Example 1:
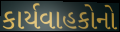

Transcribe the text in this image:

કાર્યવાહકોનો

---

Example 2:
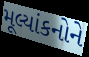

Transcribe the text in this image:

મૂલ્યાંકનોને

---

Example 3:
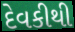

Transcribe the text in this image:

દેવકીથી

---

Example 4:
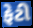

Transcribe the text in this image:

ફેટી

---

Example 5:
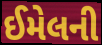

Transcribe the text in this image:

ઈમેલની